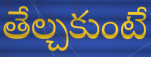
తేల్చకుంటే